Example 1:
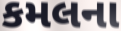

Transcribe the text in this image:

કમલના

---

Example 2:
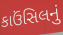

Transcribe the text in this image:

કાઉંસિલનું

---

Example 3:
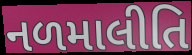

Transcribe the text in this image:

નળમાલીતિ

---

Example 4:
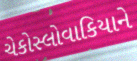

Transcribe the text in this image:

ચેકોસ્લોવાકિયાને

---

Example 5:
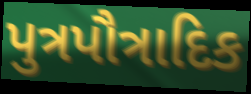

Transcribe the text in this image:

પુત્રપૌત્રાદિક